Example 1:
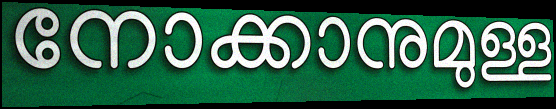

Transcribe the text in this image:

നോക്കാനുമുള്ള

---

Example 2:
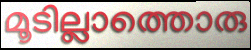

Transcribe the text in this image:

മൂടില്ലാത്തൊരു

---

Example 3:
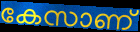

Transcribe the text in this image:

കേസാണ്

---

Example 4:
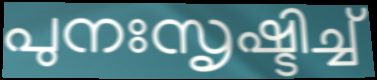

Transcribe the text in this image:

പുനഃസൃഷ്ടിച്ച്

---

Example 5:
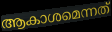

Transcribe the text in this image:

ആകാശമെന്നത്